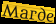
Marde